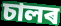
চালৰ